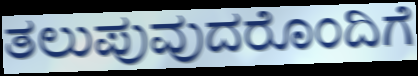
ತಲುಪುವುದರೊಂದಿಗೆ